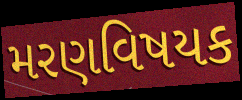
મરણવિષયક